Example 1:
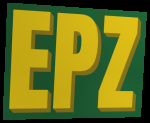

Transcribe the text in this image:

EPZ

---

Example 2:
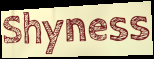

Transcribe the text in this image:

Shyness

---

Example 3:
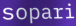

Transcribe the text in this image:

sopari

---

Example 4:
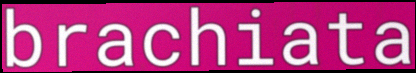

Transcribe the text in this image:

brachiata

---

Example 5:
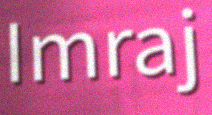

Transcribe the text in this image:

Imraj